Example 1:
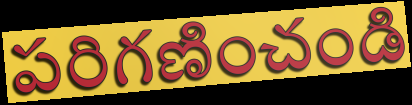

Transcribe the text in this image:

పరిగణించండి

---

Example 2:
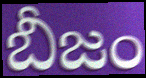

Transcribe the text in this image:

బీజం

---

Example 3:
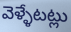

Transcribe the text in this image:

వెళ్ళేటట్లు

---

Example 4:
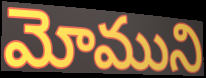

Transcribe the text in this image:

మోముని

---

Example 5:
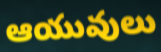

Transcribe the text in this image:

ఆయువులు